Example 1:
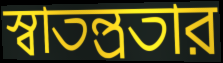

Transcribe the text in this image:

স্বাতন্ত্রতার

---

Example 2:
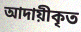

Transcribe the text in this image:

আদায়ীকৃত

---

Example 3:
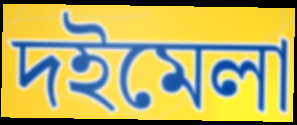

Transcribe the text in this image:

দইমেলা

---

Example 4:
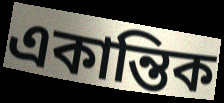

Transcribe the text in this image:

একান্তিক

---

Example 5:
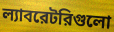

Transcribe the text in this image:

ল্যাবরেটরিগুলো